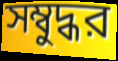
সম্বুদ্ধর